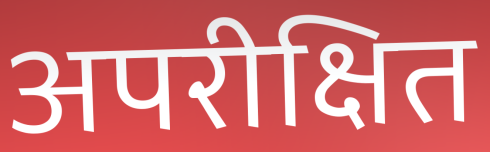
अपरीक्षित